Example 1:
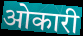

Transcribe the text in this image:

ओकारी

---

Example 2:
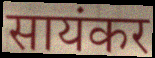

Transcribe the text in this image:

सायंकर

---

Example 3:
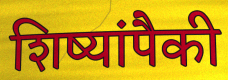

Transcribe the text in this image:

शिष्यांपैकी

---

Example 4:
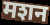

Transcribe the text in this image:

मशन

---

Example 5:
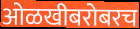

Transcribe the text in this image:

ओळखीबरोबरच